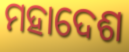
ମହାଦେଶ